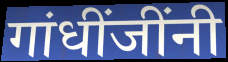
गांधींजींनी